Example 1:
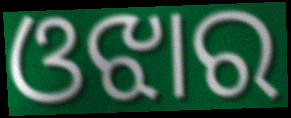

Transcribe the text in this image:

ଓଝାର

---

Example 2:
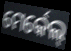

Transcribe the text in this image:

ମେର୍କେଲ୍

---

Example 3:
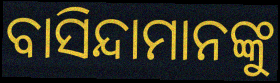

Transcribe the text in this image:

ବାସିନ୍ଦାମାନଙ୍କୁ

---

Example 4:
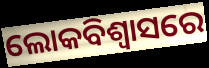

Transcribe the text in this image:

ଲୋକବିଶ୍ୱାସରେ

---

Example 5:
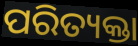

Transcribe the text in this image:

ପରିତ୍ୟକ୍ତା